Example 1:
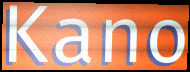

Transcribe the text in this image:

Kano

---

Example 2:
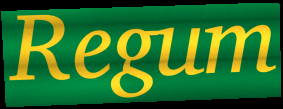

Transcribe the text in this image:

Regum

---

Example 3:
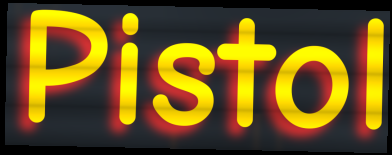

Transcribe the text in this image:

Pistol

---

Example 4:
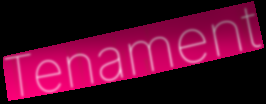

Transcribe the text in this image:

Tenament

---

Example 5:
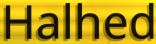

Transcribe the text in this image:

Halhed